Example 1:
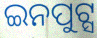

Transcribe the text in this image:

ଇନପୁଟ୍ସ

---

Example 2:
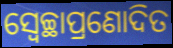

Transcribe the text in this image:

ସ୍ୱେଚ୍ଛାପ୍ରଣୋଦିତ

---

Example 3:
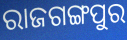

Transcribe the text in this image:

ରାଜଗଙ୍ଗପୁର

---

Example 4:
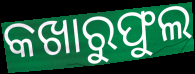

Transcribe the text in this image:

କଖାରୁଫୁଲ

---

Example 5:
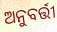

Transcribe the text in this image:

ଅନୁବର୍ତ୍ତୀ